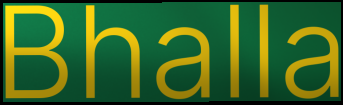
Bhalla